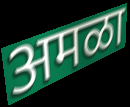
अमळा